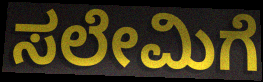
ಸಲೇಮಿಗೆ